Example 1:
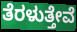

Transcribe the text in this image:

ತೆರಳುತ್ತೇವೆ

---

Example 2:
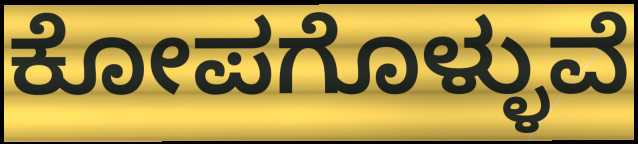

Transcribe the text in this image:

ಕೋಪಗೊಳ್ಳುವೆ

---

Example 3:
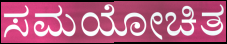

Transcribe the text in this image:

ಸಮಯೋಚಿತ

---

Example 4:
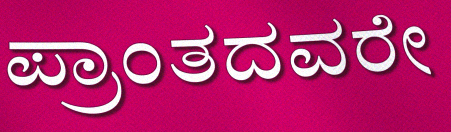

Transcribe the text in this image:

ಪ್ರಾಂತದವರೇ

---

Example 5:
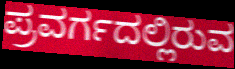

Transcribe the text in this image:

ಪ್ರವರ್ಗದಲ್ಲಿರುವ